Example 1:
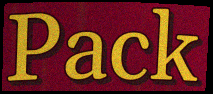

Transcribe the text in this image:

Pack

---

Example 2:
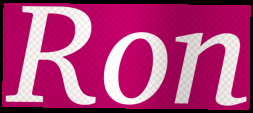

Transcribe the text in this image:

Ron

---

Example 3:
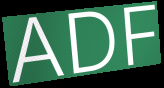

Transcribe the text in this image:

ADF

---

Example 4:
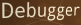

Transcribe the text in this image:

Debugger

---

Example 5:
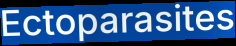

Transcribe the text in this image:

Ectoparasites